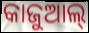
କାଜୁଆଲ୍